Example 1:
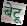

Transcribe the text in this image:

बेटू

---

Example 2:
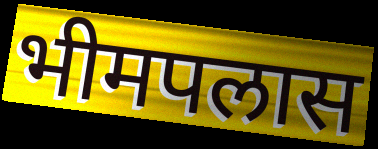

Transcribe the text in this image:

भीमपलास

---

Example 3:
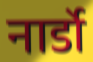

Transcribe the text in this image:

नार्डो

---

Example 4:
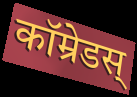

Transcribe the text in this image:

कॉम्रेडस्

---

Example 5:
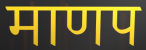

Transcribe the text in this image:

माणप